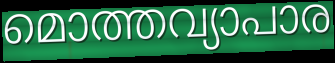
മൊത്തവ്യാപാര